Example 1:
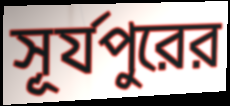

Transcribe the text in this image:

সূর্যপুরের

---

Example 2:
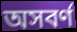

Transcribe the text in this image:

অসবর্ণ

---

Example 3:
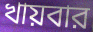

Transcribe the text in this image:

খায়বার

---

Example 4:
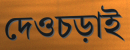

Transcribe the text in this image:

দেওচড়াই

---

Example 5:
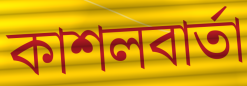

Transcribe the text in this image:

কাশলবার্তা